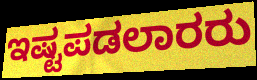
ಇಷ್ಟಪಡಲಾರರು